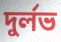
দুৰ্লভ